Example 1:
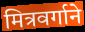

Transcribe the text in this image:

मित्रवर्गाने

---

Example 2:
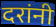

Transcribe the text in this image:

दरांनी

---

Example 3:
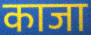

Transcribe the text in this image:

काजा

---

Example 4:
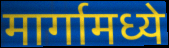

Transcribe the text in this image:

मार्गामध्ये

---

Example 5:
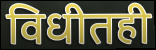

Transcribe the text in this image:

विधीतही